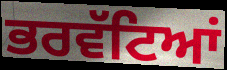
ਭਰਵੱਟਿਆਂ